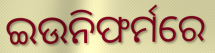
ଇଉନିଫର୍ମରେ